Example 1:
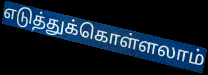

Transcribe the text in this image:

எடுத்துக்கொள்ளலாம்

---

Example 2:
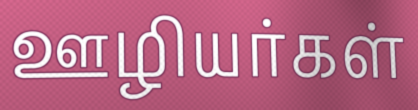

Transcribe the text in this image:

ஊழியர்கள்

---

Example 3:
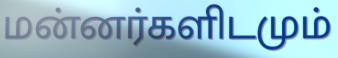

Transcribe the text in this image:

மன்னர்களிடமும்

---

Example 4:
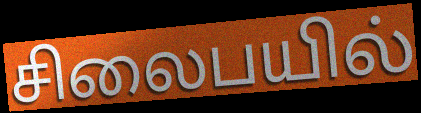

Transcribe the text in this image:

சிலைபயில்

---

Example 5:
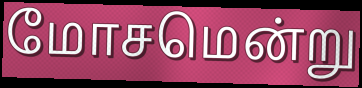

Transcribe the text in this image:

மோசமென்று